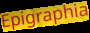
Epigraphia